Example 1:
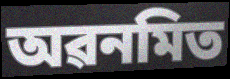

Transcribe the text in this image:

অৱনমিত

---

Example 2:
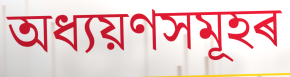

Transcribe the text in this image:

অধ্যয়ণসমূহৰ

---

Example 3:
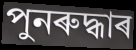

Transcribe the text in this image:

পুনৰুদ্ধাৰ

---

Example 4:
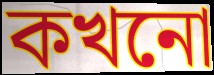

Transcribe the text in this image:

কখনো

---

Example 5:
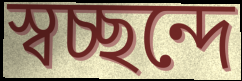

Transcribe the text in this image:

স্বচ্ছন্দে